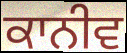
ਕਾਨੀਵ